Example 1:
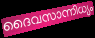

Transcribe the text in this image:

ദൈവസാന്നിധ്യം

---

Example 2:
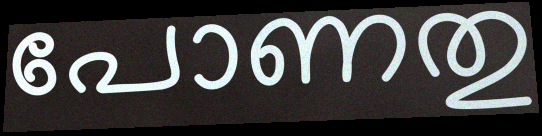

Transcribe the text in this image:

പോണതു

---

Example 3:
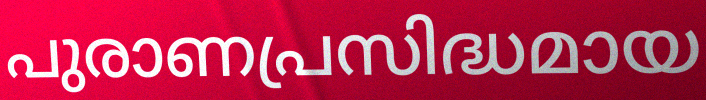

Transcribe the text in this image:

പുരാണപ്രസിദ്ധമായ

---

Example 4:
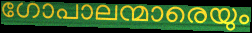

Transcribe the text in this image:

ഗോപാലന്മാരെയും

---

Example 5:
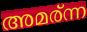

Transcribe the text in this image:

അമര്ന്ന